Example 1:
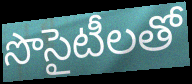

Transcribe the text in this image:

సొసైటీలతో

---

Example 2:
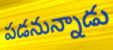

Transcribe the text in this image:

పడనున్నాడు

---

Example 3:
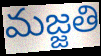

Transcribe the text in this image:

మజ్జతి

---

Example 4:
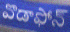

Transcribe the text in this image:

వొడాఫోన్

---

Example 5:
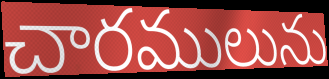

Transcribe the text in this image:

చారములును